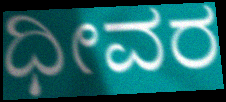
ಧೀವರ